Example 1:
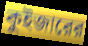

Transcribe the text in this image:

কুইজারের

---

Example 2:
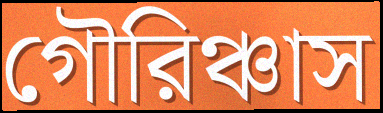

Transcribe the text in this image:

গৌরিঞ্চাস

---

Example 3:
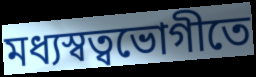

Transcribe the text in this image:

মধ্যস্বত্বভোগীতে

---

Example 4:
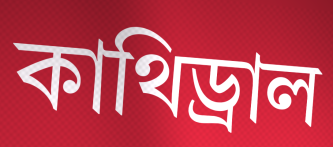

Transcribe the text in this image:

কাথিড্রাল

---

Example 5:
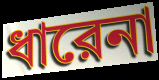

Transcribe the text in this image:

ধারেনা